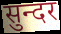
सुन्दर